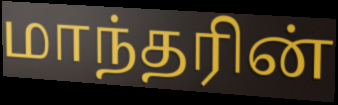
மாந்தரின்